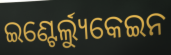
ଇଣ୍ଟେର୍ଲ୍ୟୁକେଇନ